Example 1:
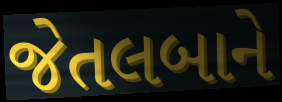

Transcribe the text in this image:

જેતલબાને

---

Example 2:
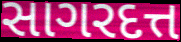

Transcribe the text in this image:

સાગરદત્ત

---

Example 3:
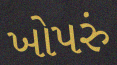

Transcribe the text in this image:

ખોપરું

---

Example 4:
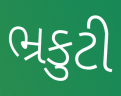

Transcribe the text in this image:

ભ્રકુટી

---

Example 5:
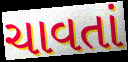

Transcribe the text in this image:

ચાવતાં